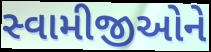
સ્વામીજીઓને